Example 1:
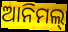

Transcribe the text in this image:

ଆନିମଲ୍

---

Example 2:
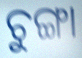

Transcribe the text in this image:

ଚୁଙ୍ଗା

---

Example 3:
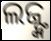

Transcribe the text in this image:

ଲଜ୍ଙ୍କ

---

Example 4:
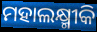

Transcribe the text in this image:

ମହାଲକ୍ଷ୍ମୀକି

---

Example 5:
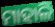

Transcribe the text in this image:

ମାହାଳି